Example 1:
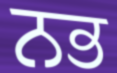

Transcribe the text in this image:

ਨਭ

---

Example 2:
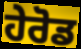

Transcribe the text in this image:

ਹੇਰੋਡ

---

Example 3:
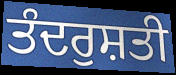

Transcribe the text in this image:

ਤੰਦਰੁਸ਼ਤੀ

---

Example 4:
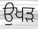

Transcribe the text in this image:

ਉਖੜ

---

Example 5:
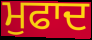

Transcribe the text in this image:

ਮੁਫਾਦ